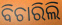
ବିଚାରିଲି